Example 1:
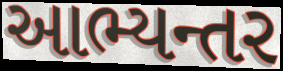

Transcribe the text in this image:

આભ્યન્તર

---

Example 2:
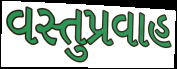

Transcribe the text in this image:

વસ્તુપ્રવાહ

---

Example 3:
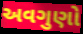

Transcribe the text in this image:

અવગુણો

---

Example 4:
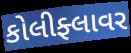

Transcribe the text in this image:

કોલીફ્લાવર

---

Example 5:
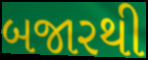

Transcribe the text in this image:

બજારથી